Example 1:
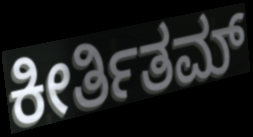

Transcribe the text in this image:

ಕೀರ್ತಿತಮ್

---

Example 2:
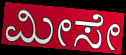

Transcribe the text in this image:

ಮೀಸೇ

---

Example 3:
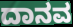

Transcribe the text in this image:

ದಾನವ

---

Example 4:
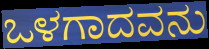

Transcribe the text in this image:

ಒಳಗಾದವನು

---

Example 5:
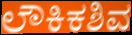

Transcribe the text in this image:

ಲೌಕಿಕಶಿವ